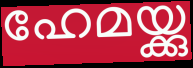
ഹേമയ്ക്കു